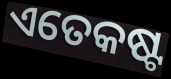
ଏତେକଷ୍ଟ